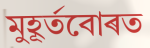
মুহূৰ্তবোৰত